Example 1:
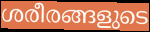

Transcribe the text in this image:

ശരീരങ്ങളുടെ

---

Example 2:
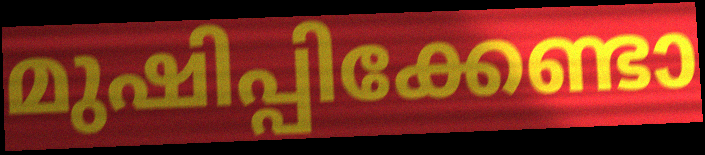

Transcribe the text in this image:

മുഷിപ്പിക്കേണ്ടാ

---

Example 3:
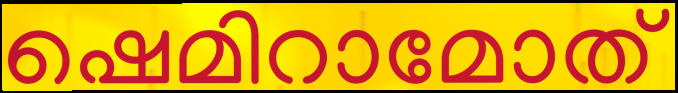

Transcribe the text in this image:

ഷെമിറാമോത്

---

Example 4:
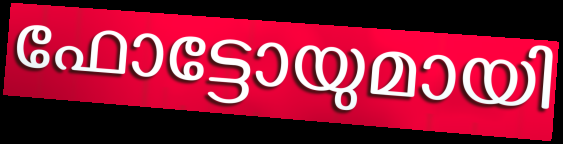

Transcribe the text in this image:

ഫോട്ടോയുമായി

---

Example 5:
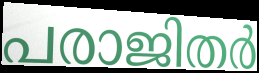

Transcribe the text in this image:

പരാജിതർ